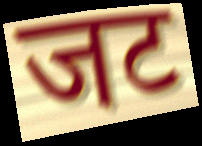
जट